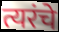
त्यरंचे